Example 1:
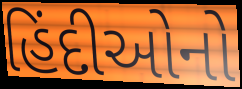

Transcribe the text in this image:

હિંદીઓનો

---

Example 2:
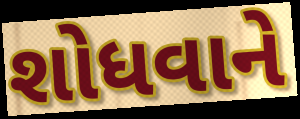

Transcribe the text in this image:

શોધવાને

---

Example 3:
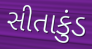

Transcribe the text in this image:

સીતાકુંડ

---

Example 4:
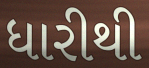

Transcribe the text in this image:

ધારીથી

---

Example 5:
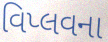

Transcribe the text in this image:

વિપ્લવના